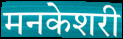
मनकेशरी